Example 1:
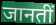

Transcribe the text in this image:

जानतीं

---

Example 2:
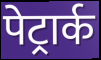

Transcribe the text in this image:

पेट्रार्क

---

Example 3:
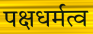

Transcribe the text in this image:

पक्षधर्मत्व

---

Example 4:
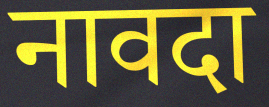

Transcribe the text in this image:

नावदा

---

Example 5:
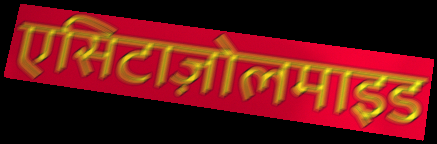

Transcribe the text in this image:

एसिटाज़ोलमाइड